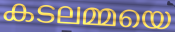
കടലമ്മയെ